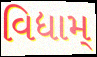
વિદ્યામ્